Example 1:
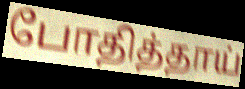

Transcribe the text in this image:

போதித்தாய்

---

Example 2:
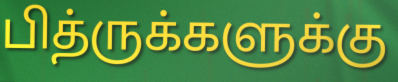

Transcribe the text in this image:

பித்ருக்களுக்கு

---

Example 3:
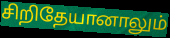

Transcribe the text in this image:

சிறிதேயானாலும்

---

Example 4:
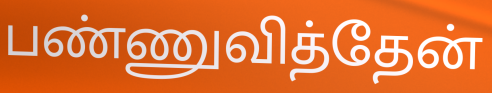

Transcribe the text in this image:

பண்ணுவித்தேன்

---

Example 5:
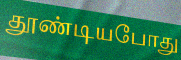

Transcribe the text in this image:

தூண்டியபோது